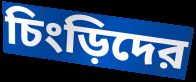
চিংড়িদের